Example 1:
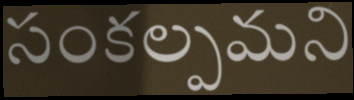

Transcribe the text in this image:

సంకల్పమని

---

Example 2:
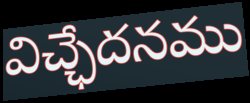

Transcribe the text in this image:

విచ్ఛేదనము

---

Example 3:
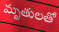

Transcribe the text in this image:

మృతులతో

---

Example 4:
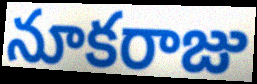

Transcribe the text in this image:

నూకరాజు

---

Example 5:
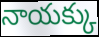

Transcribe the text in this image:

నాయక్కు